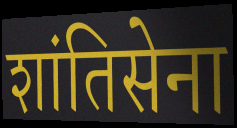
शांतिसेना